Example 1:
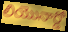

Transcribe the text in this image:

లియొనార్డో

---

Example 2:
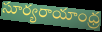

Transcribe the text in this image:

సూర్యరాయాంధ్ర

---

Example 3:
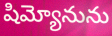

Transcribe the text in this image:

షిమ్యోనును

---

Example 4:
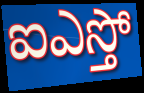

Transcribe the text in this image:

ఐఎస్తో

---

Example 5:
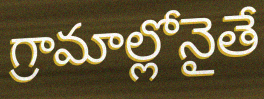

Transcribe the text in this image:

గ్రామాల్లోనైతే